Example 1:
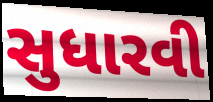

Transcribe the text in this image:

સુધારવી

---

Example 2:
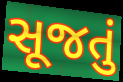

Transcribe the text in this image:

સૂજતું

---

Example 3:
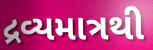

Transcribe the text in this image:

દ્રવ્યમાત્રથી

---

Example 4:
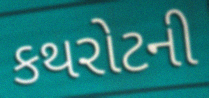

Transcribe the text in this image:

કથરોટની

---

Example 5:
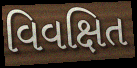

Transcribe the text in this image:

વિવક્ષિત